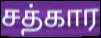
சத்கார